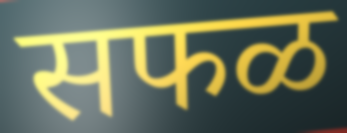
सफळ